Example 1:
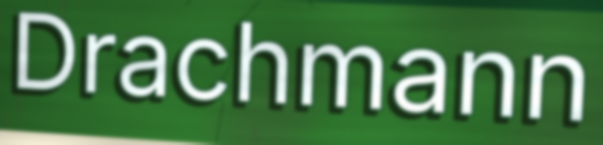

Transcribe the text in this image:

Drachmann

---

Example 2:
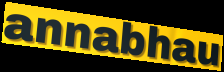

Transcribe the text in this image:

annabhau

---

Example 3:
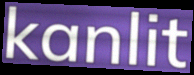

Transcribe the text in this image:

kanlit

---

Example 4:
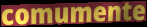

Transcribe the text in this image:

comumente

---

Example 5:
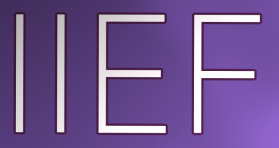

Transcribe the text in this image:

IIEF